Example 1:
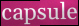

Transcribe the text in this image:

capsule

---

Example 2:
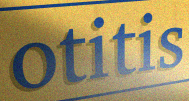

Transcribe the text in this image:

otitis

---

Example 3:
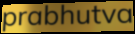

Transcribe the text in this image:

prabhutva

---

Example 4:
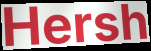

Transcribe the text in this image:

Hersh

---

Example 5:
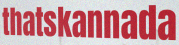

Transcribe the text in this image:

thatskannada